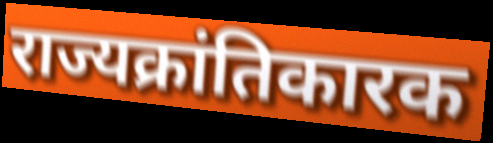
राज्यक्रांतिकारक